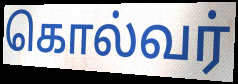
கொல்வர்